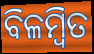
ବିଳମ୍ବିତ